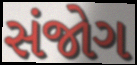
સંજોગ